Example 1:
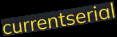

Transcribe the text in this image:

currentserial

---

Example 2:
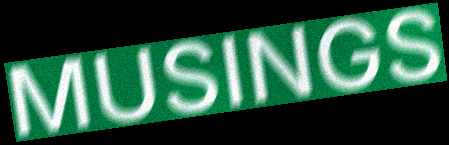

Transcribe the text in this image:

MUSINGS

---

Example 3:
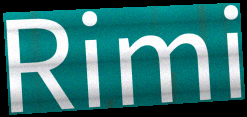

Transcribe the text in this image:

Rimi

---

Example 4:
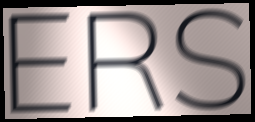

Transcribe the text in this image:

ERS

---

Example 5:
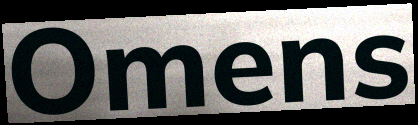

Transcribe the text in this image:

Omens